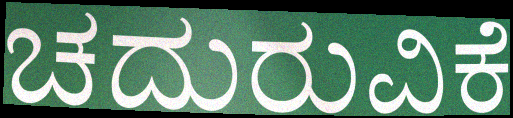
ಚದುರುವಿಕೆ